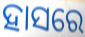
ହାସରେ